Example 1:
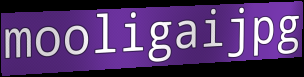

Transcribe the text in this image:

mooligaijpg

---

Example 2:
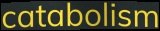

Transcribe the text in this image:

catabolism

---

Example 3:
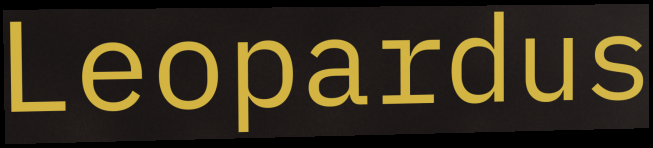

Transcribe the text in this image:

Leopardus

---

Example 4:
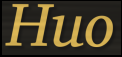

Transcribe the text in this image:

Huo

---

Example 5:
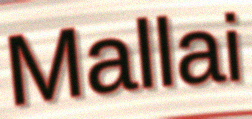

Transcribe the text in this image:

Mallai